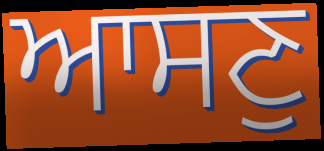
ਆਸਣੁ